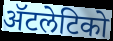
ॲटलेटिको